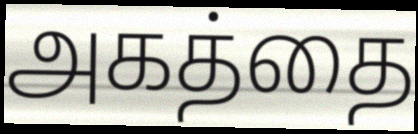
அகத்தை